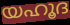
യഹൂദ